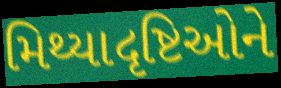
મિથ્યાદૃષ્ટિઓને